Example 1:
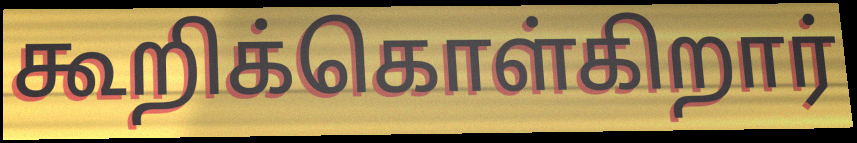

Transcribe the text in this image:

கூறிக்கொள்கிறார்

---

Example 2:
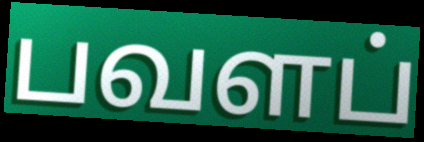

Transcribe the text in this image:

பவளப்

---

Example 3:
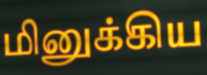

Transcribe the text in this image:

மினுக்கிய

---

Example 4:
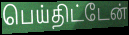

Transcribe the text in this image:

பெய்திட்டேன்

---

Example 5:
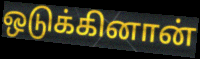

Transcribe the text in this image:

ஒடுக்கினான்